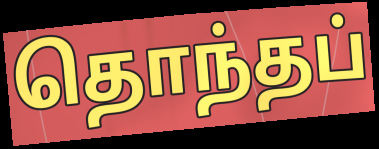
தொந்தப்